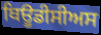
ਥਿਊਡੀਸੀਅਸ